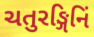
ચતુરઙ્ગિનિં